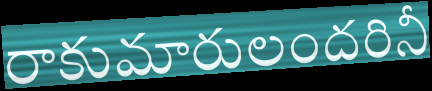
రాకుమారులందరినీ